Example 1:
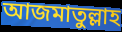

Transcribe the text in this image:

আজমাতুল্লাহ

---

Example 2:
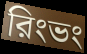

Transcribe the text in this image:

রিংভং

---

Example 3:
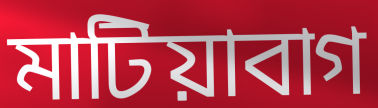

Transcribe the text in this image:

মাটিয়াবাগ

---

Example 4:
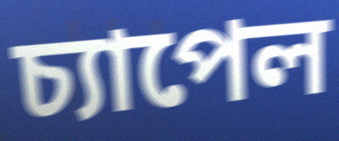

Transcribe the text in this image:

চ্যাপেল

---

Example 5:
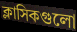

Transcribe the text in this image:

ক্লাসিকগুলো